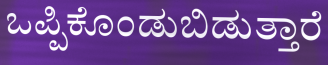
ಒಪ್ಪಿಕೊಂಡುಬಿಡುತ್ತಾರೆ